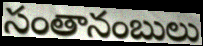
సంతానంబులు